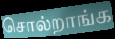
சொல்றாங்க